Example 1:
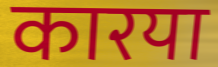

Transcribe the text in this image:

कारया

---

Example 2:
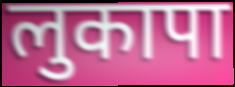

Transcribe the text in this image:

लुकापा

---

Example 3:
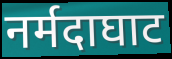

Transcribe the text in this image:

नर्मदाघाट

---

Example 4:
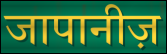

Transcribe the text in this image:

जापानीज़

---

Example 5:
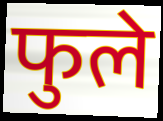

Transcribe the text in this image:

फुले